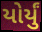
યોર્યું